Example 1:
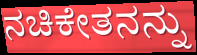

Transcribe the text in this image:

ನಚಿಕೇತನನ್ನು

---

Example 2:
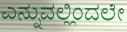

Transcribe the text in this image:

ಎನ್ನುವಲ್ಲಿಂದಲೇ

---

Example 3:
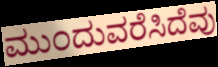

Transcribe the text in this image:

ಮುಂದುವರೆಸಿದೆವು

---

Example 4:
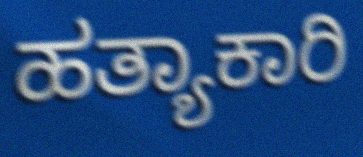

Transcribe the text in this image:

ಹತ್ಯಾಕಾರಿ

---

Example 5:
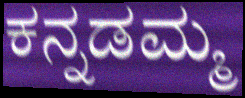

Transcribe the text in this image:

ಕನ್ನಡಮ್ಮ